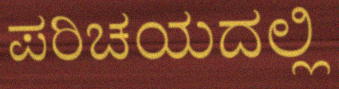
ಪರಿಚಯದಲ್ಲಿ